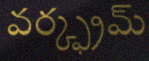
వర్క్ఫ్రమ్